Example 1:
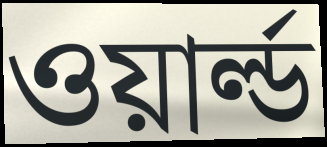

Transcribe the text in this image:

ওয়ার্ল্ড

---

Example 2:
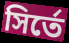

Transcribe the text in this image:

সির্তে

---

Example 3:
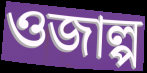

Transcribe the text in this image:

ওজাল্প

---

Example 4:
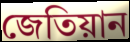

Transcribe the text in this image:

জেতিয়ান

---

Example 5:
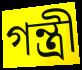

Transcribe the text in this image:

গন্ত্রী